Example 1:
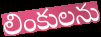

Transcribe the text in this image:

లింకులను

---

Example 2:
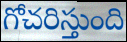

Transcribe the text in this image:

గోచరిస్తుంది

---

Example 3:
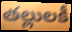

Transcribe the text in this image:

తల్లులకీ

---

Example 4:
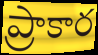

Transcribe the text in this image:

ప్రాకార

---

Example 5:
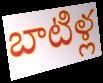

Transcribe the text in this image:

బాటిళ్ల